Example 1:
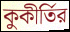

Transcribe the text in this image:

কুকীর্তির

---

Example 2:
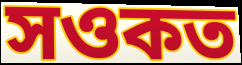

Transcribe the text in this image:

সওকত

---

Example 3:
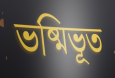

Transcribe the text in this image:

ভষ্মিভূত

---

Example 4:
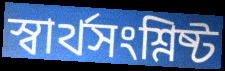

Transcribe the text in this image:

স্বার্থসংশ্নিষ্ট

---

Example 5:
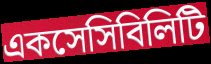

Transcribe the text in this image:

একসেসিবিলিটি